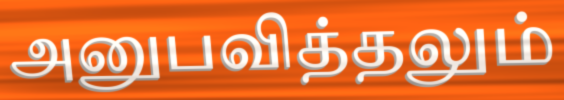
அனுபவித்தலும்